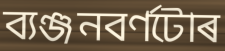
ব্যঞ্জনবৰ্ণটোৰ